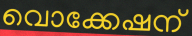
വൊക്കേഷന്